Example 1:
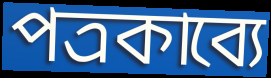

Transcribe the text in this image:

পত্রকাব্যে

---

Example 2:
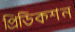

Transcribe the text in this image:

প্রিডিকশন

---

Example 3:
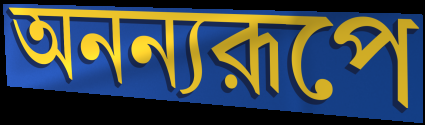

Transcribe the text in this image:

অনন্যরূপে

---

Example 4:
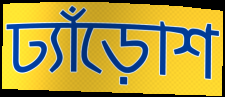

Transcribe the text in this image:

ঢ্যাঁড়োশ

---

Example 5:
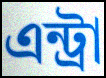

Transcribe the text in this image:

এন্ট্রা